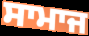
ਸਾਮਾਜ